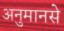
अनुमानसे